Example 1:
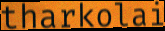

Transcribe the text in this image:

tharkolai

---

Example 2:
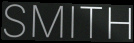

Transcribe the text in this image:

SMITH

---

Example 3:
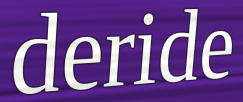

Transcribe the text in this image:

deride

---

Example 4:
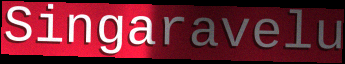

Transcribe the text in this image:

Singaravelu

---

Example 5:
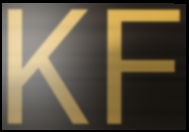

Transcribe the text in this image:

KF